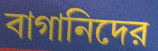
বাগানিদের